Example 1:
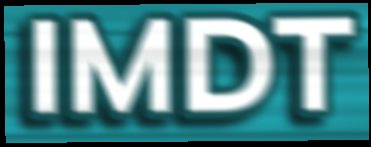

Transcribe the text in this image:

IMDT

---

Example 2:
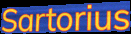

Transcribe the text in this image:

Sartorius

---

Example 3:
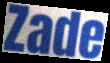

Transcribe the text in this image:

Zade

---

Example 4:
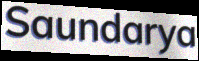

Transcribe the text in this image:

Saundarya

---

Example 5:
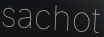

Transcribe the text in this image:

sachot